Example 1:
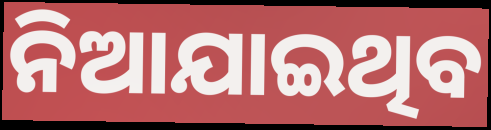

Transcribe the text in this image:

ନିଆଯାଇଥିବ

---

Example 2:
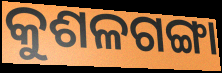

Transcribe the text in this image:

କୁଶଳଗଙ୍ଗା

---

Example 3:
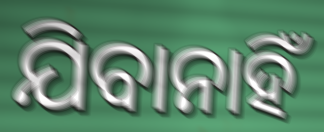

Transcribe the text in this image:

ଯିବାନାହିଁ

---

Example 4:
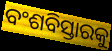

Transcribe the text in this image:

ବଂଶବିସ୍ତାରକୁ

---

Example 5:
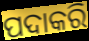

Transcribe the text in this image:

ପଦାକରି